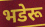
भडेरू